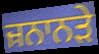
ਜ਼ਨਾਨੜੇ